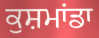
ਕੁਸ਼ਮਾਂਡਾ